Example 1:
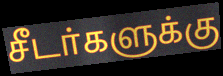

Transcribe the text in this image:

சீடர்களுக்கு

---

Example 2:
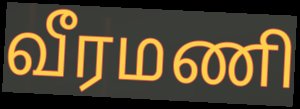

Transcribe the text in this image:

வீரமணி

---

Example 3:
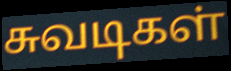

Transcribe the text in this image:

சுவடிகள்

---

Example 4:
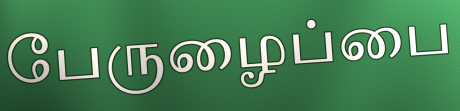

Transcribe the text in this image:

பேருழைப்பை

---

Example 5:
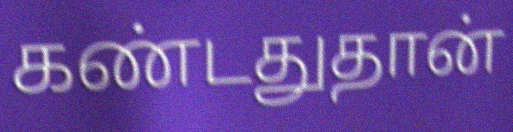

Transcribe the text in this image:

கண்டதுதான்